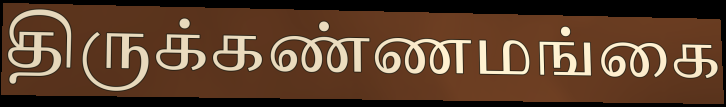
திருக்கண்ணமங்கை